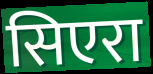
सिएरा